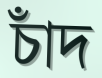
চাঁদ